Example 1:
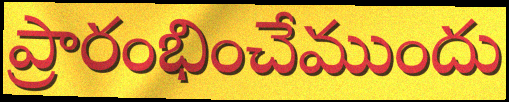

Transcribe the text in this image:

ప్రారంభించేముందు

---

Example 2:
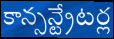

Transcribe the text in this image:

కాన్సన్ట్రేటర్ల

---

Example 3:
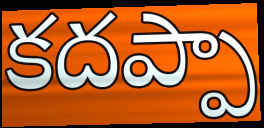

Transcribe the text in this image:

కదప్పా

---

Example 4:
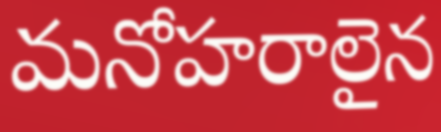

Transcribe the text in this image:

మనోహరాలైన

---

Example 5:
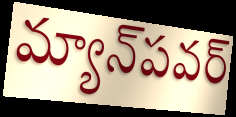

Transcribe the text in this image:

మ్యాన్‌పవర్